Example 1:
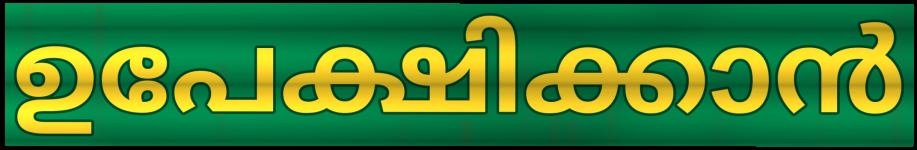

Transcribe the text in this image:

ഉപേക്ഷിക്കാൻ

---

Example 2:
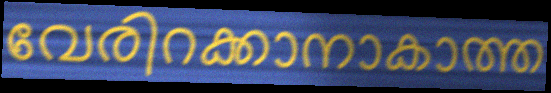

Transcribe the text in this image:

വേരിറക്കാനാകാത്ത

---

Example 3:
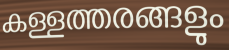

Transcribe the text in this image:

കള്ളത്തരങ്ങളും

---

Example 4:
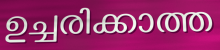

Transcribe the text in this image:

ഉച്ചരിക്കാത്ത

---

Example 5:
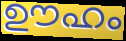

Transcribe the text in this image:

ഊഹം